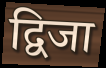
द्विजा